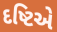
દષ્ટિએ